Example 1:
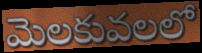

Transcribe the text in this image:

మెలకువలలో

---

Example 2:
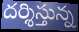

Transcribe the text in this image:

దర్శిస్తున్న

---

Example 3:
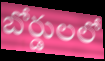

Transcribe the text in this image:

బోర్డులలో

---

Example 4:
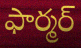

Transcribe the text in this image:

ఫార్మర్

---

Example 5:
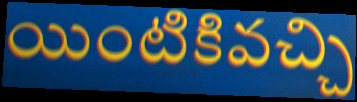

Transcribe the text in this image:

యింటికివచ్చి